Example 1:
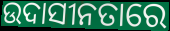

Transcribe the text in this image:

ଉଦାସୀନତାରେ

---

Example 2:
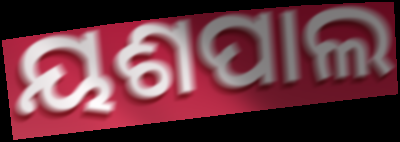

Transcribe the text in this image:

ୟଶପାଲ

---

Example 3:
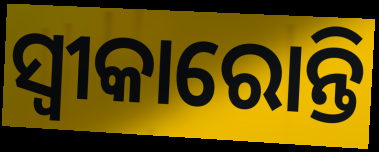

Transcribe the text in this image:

ସ୍ଵୀକାରୋନ୍ତି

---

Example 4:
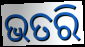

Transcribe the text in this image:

ଭତରି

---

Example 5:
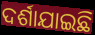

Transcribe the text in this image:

ଦର୍ଶାଯାଇଛି